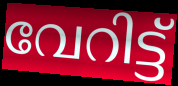
വേറിട്ട്